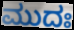
ಮುದಃ